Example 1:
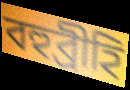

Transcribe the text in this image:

বহুব্ৰীহি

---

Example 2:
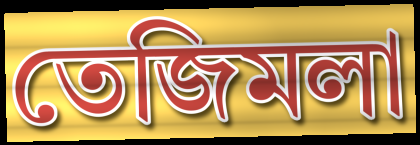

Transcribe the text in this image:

তেজিমলা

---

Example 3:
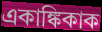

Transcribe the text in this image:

একাঙ্কিকাক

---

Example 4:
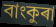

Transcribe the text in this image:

বাংকুৰা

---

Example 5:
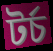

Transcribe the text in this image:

টৰ্চ